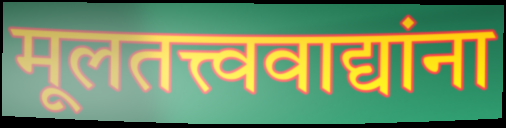
मूलतत्त्ववाद्यांना